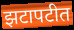
झटापटीत